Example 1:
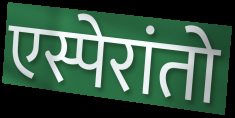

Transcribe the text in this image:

एस्पेरांतो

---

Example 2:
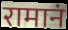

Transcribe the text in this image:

रामानं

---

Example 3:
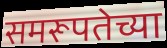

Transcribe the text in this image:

समरूपतेच्या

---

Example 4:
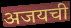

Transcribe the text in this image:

अजयची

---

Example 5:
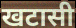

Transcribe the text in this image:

खटासी